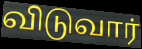
விடுவார்